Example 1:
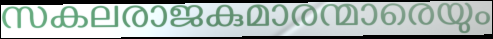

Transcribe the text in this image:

സകലരാജകുമാരന്മാരെയും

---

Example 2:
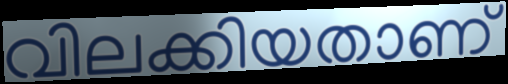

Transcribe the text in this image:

വിലക്കിയതാണ്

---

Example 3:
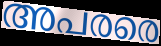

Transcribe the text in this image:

അപരരെ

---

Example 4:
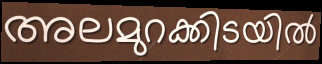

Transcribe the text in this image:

അലമുറക്കിടയിൽ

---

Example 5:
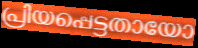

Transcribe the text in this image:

പ്രിയപ്പെട്ടതായോ